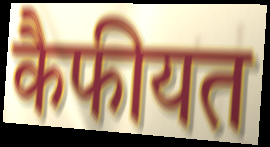
कैफीयत